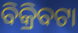
ବିକ୍ରିବଟା